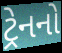
ટ્રેનનો